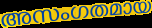
അസംഗതമായ